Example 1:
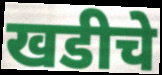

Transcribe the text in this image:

खडीचे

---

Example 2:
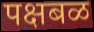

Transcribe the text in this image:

पक्षबळ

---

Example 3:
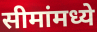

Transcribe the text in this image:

सीमांमध्ये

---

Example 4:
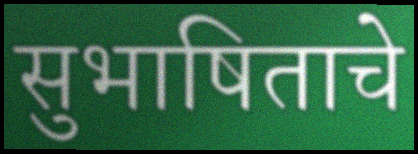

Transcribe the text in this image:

सुभाषिताचे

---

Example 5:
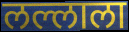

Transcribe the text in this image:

लल्लाला